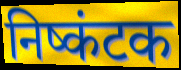
निष्कंटक